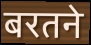
बरतने